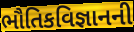
ભૌતિકવિજ્ઞાનની